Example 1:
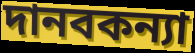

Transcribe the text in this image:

দানবকন্যা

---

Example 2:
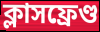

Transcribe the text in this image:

ক্লাসফ্রেণ্ড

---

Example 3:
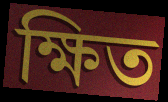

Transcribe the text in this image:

ক্ষিত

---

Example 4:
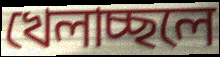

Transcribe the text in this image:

খেলাচ্ছলে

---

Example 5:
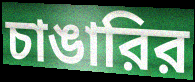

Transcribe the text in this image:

চাঙারির